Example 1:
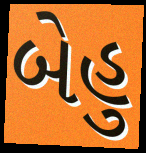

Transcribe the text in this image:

બેહુ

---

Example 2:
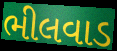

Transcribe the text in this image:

ભીલવાડ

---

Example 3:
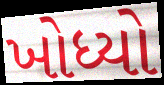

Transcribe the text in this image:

ખોધ્યો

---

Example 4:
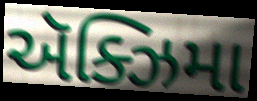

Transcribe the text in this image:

ઍક્ઝિમા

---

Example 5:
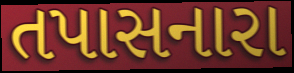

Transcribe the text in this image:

તપાસનારા